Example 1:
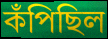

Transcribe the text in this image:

কঁপিছিল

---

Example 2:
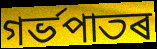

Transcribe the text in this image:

গৰ্ভপাতৰ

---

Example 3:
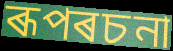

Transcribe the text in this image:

ৰূপৰচনা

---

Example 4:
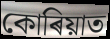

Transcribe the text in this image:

কোৰিয়াত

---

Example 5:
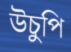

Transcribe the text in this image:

উচুপি